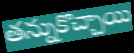
తన్నుకొచ్చాయి